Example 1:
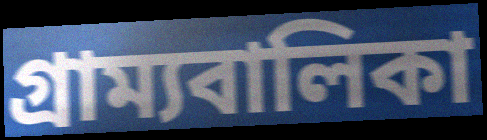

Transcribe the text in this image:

গ্রাম্যবালিকা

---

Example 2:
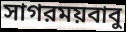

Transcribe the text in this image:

সাগরময়বাবু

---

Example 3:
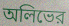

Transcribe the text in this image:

অলিভের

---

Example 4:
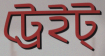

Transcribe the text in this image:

ট্রেইট্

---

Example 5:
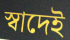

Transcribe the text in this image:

স্বাদেই